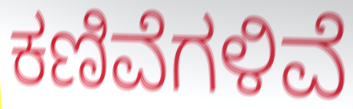
ಕಣಿವೆಗಳಿವೆ